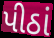
પીઠાં